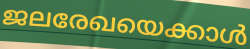
ജലരേഖയെക്കാൾ